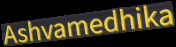
Ashvamedhika